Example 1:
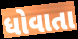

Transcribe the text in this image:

ધોવાતા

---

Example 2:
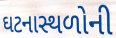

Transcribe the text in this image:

ઘટનાસ્થળોની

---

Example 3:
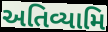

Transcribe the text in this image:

અતિવ્યામિ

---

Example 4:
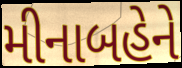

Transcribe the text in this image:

મીનાબહેને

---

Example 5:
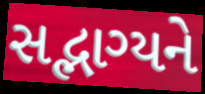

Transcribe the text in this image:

સદ્ભાગ્યને